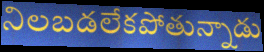
నిలబడలేకపోతున్నాడు